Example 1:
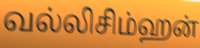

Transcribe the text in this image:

வல்லிசிம்ஹன்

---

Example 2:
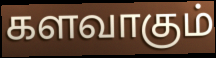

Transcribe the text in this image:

களவாகும்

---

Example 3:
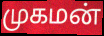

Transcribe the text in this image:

முகமன்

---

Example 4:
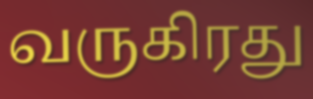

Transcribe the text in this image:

வருகிரது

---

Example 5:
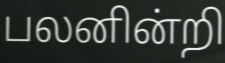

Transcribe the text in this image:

பலனின்றி